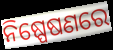
ନିଷ୍ପେଷଣରେ